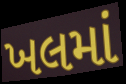
ખલમાં